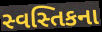
સ્વસ્તિકના